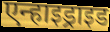
एन्हाइड्राइड